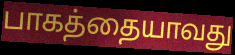
பாகத்தையாவது